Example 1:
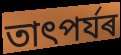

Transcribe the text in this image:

তাৎপৰ্যৰ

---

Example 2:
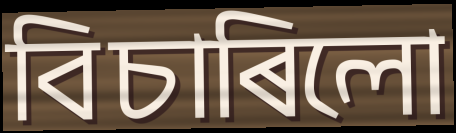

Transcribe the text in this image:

বিচাৰিলো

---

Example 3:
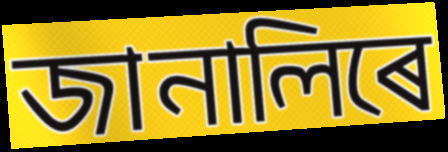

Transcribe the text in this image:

জানালিৰে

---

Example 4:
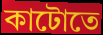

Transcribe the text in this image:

কাটোতে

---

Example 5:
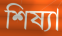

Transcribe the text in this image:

শিষ্যা